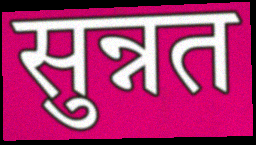
सुन्नत